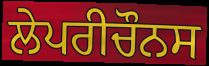
ਲੇਪਰੀਚੌਨਸ